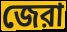
জেরা